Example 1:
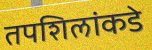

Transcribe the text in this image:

तपशिलांकडे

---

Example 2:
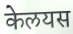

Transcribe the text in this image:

केलयस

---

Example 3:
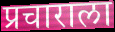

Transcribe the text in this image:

प्रचाराला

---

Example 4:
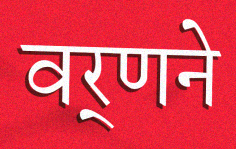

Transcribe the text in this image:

वर्णने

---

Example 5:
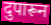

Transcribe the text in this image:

दुपारून